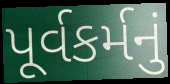
પૂર્વકર્મનું